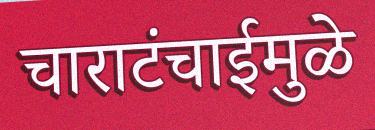
चाराटंचाईमुळे